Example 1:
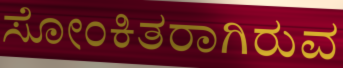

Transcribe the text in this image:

ಸೋಂಕಿತರಾಗಿರುವ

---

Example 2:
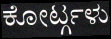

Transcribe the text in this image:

ಕೋರ್ಟ್ಗಳು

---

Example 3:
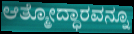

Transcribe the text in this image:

ಆತ್ಮೋದ್ಧಾರವನ್ನೂ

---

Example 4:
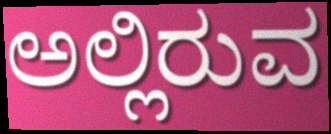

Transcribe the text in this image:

ಅಲ್ಲಿರುವ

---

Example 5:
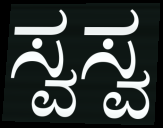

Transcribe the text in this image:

ಸ್ವಸ್ವ